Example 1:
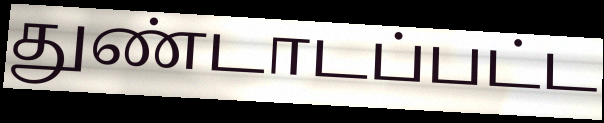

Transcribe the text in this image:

துண்டாடப்பட்ட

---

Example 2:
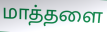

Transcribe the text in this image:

மாத்தளை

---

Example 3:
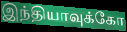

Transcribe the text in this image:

இந்தியாவுக்கோ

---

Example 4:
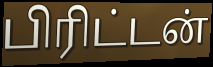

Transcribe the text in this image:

பிரிட்டன்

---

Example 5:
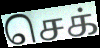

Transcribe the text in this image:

செக்